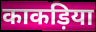
काकड़िया